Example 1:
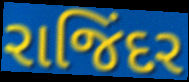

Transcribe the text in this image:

રાજિંદર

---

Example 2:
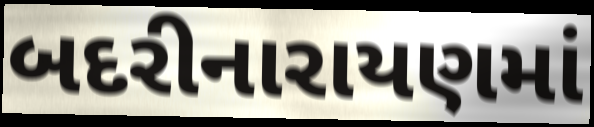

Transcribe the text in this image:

બદરીનારાયણમાં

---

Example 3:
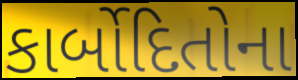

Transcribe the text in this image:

કાર્બોદિતોના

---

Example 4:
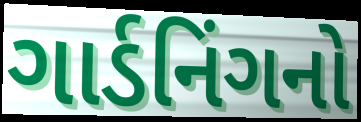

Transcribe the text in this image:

ગાર્ડનિંગનો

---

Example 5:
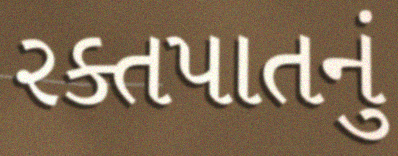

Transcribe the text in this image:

રક્તપાતનું